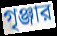
গৃঞ্জার